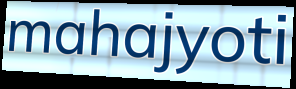
mahajyoti